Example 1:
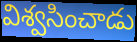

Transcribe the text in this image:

విశ్వసించాడు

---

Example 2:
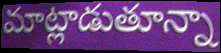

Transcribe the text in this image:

మాట్లాడుతూన్నా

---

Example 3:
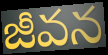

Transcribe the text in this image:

జీవన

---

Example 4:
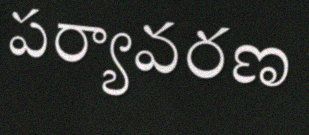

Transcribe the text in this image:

పర్యావరణ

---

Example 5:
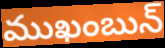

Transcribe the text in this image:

ముఖంబున్